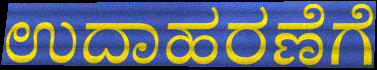
ಉದಾಹರಣೆಗೆ